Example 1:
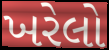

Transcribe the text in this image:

ખરેલો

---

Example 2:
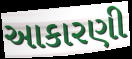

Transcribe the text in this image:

આકારણી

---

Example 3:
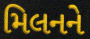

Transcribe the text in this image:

મિલનને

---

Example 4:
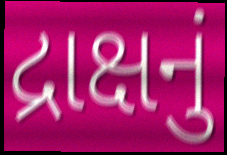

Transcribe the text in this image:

દ્રાક્ષનું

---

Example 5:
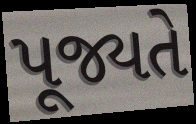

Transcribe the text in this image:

પૂજ્યતે